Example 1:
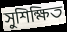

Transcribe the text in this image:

সুশিক্ষিত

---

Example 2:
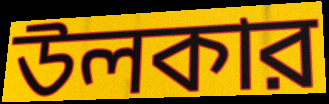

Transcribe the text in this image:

উলকার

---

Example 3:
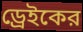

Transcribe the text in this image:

ড্রেইকের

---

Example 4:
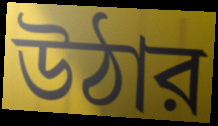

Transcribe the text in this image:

উঠার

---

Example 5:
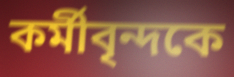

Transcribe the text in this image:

কর্মীবৃন্দকে